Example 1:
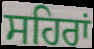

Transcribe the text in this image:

ਸਹਿਰਾਂ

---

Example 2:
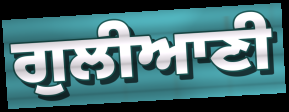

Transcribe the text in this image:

ਗੁਲੀਆਣੀ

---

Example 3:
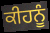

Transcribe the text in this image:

ਕੀਹਨੂੰ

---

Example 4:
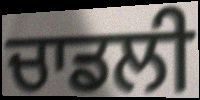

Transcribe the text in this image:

ਚਾਡਲੀ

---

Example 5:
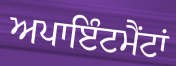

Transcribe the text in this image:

ਅਪਾਇੰਟਮੈਂਟਾਂ